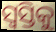
ସ୍ୱସ୍ତିକୁ